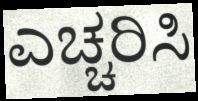
ಎಚ್ಚರಿಸಿ